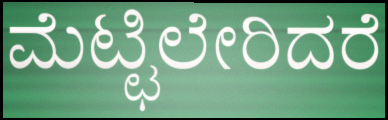
ಮೆಟ್ಟಿಲೇರಿದರೆ